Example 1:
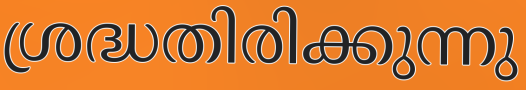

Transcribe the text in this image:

ശ്രദ്ധതിരിക്കുന്നു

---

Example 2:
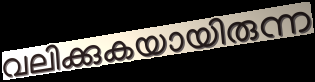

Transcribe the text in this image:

വലിക്കുകയായിരുന്ന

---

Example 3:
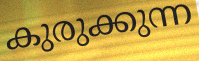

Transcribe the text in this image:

കുരുക്കുന്ന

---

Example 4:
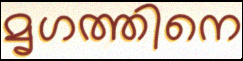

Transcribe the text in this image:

മൃഗത്തിനെ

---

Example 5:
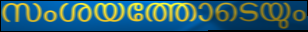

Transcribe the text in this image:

സംശയത്തോടെയും